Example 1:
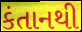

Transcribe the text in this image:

કંતાનથી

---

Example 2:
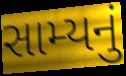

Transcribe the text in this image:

સામ્યનું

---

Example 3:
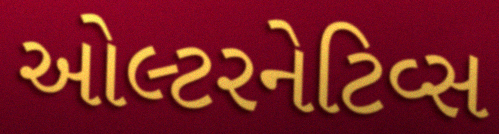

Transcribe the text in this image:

ઓલ્ટરનેટિવ્સ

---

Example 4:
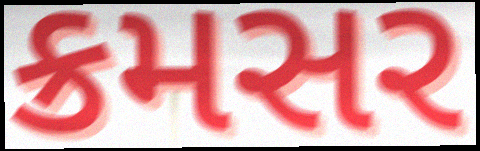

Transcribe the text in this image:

ક્રમસર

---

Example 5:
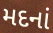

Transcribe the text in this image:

મદનાં